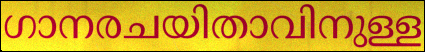
ഗാനരചയിതാവിനുള്ള